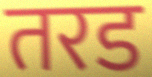
तरड